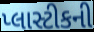
પ્લાસ્ટીકની